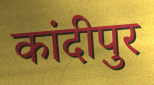
कांदीपुर